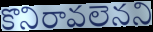
కొనిరావలెనని